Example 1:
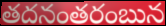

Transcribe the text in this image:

తదనంతరంబున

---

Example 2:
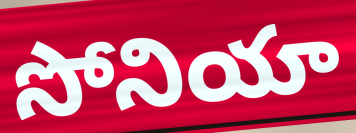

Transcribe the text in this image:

సోనియా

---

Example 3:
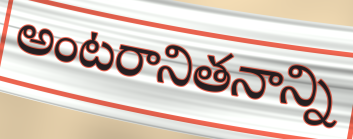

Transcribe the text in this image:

అంటరానితనాన్ని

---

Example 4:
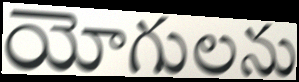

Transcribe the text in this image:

యోగులను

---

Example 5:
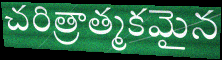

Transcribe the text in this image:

చరిత్రాత్మకమైన